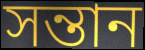
সন্তান